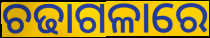
ଚଢାଗଳାରେ